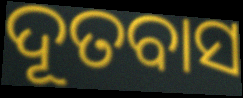
ଦୂତବାସ